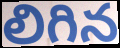
లిగిన